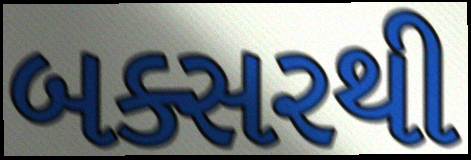
બક્સરથી